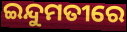
ଇନ୍ଦୁମତୀରେ